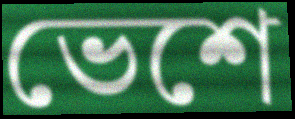
ভেশে